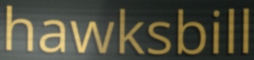
hawksbill